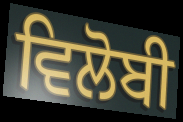
ਵਿਲੋਬੀ